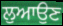
ਲੁਆਉਣ